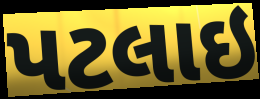
પટલાઇ